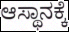
ಆಸ್ಥಾನಕ್ಕೆ